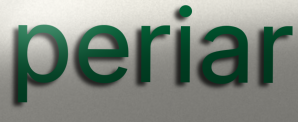
periar